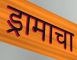
ड्रामाचा